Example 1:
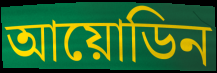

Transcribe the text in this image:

আয়োডিন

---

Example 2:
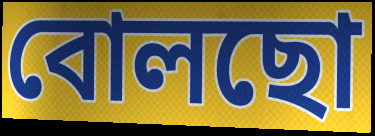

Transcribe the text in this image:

বোলছো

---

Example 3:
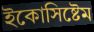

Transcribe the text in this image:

ইকোসিষ্টেম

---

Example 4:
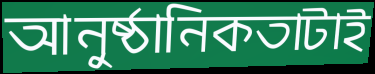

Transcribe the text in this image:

আনুষ্ঠানিকতাটাই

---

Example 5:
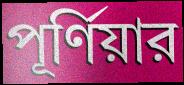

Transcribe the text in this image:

পূর্ণিয়ার